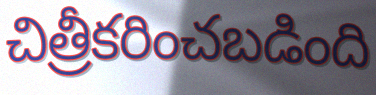
చిత్రీకరించబడింది